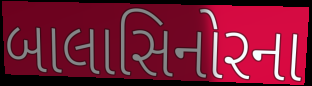
બાલાસિનોરના